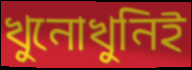
খুনোখুনিই